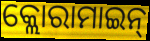
କ୍ଲୋରାମାଇନ୍